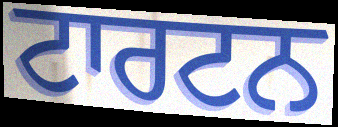
ਟਾਰਟਨ